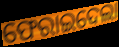
ଫେରାଇଦେଲା